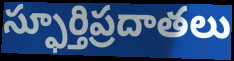
స్ఫూర్తిప్రదాతలు